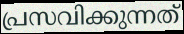
പ്രസവിക്കുന്നത്